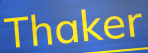
Thaker